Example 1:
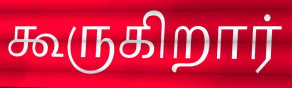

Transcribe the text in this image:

கூருகிறார்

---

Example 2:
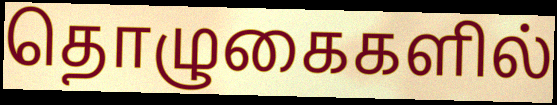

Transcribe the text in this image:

தொழுகைகளில்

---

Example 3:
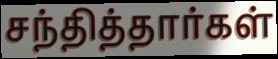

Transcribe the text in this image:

சந்தித்தார்கள்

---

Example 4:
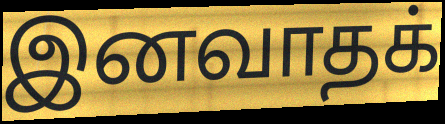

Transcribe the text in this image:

இனவாதக்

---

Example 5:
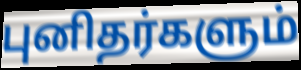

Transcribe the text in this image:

புனிதர்களும்